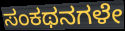
ಸಂಕಥನಗಳೇ